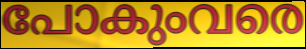
പോകുംവരെ